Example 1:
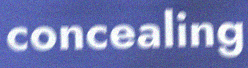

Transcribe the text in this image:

concealing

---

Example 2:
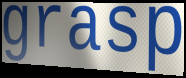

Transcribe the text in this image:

grasp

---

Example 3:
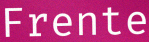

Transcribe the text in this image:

Frente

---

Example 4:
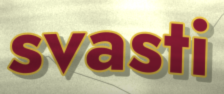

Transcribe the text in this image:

svasti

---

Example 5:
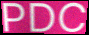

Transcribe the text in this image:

PDC